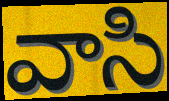
వాసి